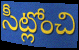
సీట్లోంచి